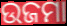
ଉଜମା